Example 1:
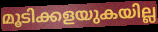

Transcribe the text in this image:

മൂടിക്കളയുകയില്ല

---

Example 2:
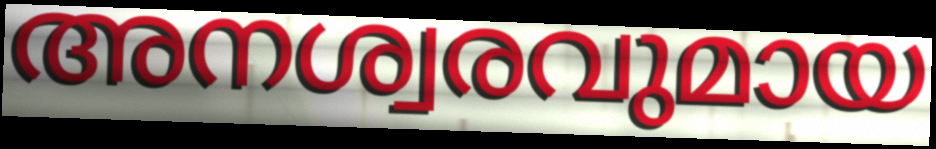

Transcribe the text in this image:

അനശ്വരവുമായ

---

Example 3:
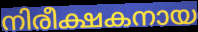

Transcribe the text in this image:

നിരീക്ഷകനായ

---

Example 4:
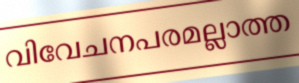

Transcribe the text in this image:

വിവേചനപരമല്ലാത്ത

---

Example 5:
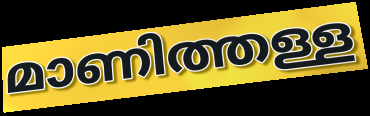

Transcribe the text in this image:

മാണിത്തള്ള